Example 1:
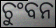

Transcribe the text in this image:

ଚୁଂବନ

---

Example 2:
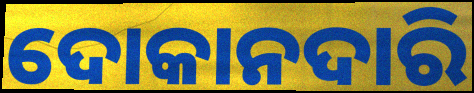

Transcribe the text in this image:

ଦୋକାନଦାରି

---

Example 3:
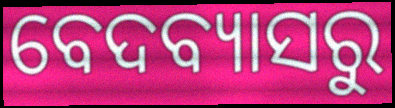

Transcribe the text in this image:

ବେଦବ୍ୟାସରୁ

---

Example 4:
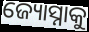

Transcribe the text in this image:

ଜ୍ୟୋସ୍ନାକୁ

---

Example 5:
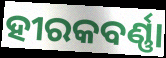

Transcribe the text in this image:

ହୀରକବର୍ଣ୍ଣା